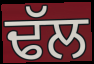
ਢੱਲ